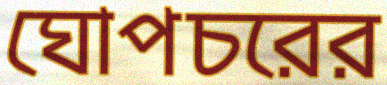
ঘোপচরের